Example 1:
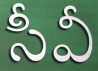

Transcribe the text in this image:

సీవీ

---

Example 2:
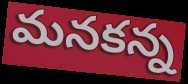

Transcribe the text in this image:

మనకన్న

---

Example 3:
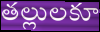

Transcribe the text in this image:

తల్లులకూ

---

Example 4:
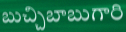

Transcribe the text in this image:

బుచ్చిబాబుగారి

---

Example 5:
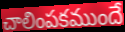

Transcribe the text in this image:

చాలింపకముందే